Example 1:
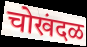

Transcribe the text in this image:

चोखंदळ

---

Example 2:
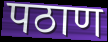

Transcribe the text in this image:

पठाण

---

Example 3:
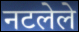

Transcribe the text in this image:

नटलेले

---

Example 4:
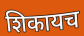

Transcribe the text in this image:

शिकायच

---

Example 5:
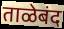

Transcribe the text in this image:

ताळेबंद